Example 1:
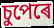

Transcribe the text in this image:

চুপেৰে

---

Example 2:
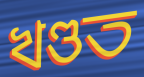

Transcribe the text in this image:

খণ্ডত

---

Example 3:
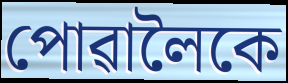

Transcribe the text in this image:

পোৱালৈকে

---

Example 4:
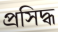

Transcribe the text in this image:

প্ৰসিদ্ধ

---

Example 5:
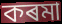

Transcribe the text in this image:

কৰমা